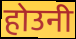
होउनी